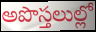
అపొస్తలుల్లో